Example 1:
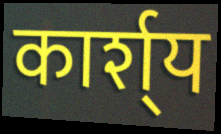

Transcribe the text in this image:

कार्श्य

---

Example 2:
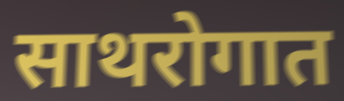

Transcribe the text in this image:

साथरोगात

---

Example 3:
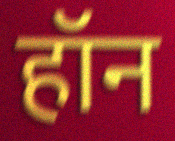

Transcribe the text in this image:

हॉन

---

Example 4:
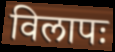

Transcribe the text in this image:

विलापः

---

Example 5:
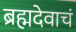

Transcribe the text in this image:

ब्रह्मदेवाचं